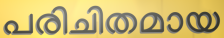
പരിചിതമായ